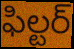
ఫిల్టర్